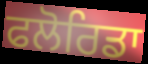
ਫਲੋਰਿਡਾ